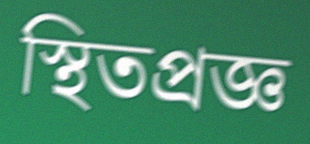
স্থিতপ্রজ্ঞ